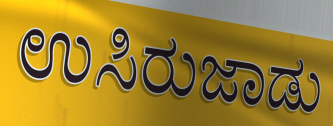
ಉಸಿರುಜಾಡು